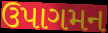
ઉપાગમન